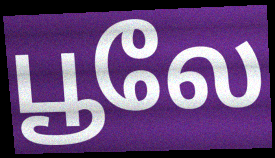
பூலே